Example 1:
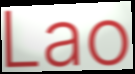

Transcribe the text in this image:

Lao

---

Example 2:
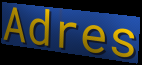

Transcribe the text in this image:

Adres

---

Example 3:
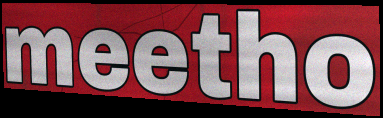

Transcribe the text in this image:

meetho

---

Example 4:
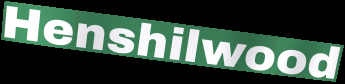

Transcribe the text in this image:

Henshilwood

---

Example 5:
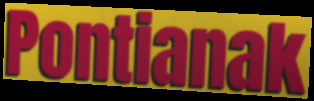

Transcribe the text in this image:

Pontianak